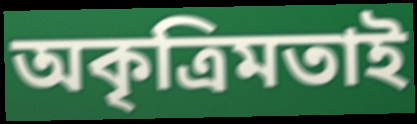
অকৃত্রিমতাই